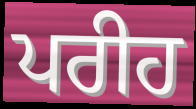
ਪਰੀਹ